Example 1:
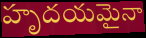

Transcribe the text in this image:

హృదయమైనా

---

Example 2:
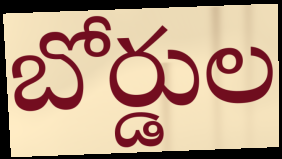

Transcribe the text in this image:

బోర్డుల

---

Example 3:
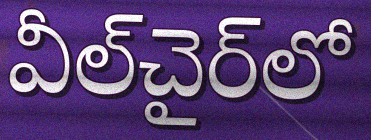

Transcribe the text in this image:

వీల్‌చైర్‌లో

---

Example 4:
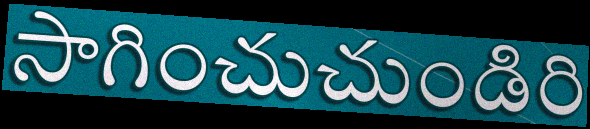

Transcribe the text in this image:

సాగించుచుండిరి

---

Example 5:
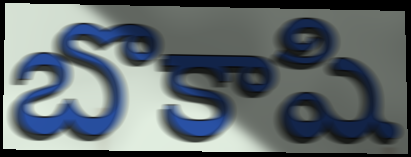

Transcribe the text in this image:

బొకాషి